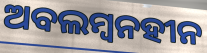
ଅବଲମ୍ବନହୀନ